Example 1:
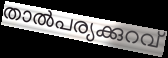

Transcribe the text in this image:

താൽപര്യക്കുറവ്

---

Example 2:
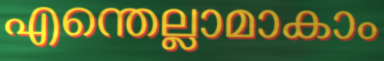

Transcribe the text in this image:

എന്തെല്ലാമാകാം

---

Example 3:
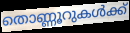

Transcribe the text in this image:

തൊണ്ണൂറുകൾക്ക്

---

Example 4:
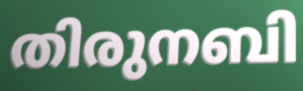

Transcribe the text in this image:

തിരുനബി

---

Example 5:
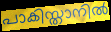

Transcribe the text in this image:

പാകിസ്താനിൽ